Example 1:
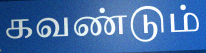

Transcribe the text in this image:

கவண்டும்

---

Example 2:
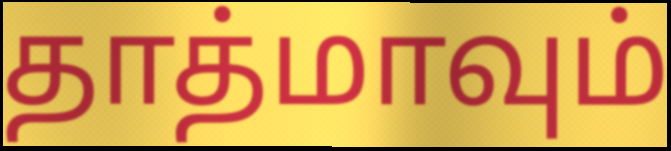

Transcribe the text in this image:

தாத்மாவும்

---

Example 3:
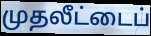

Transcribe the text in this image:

முதலீட்டைப்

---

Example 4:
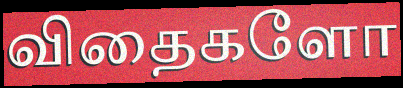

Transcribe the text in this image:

விதைகளோ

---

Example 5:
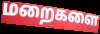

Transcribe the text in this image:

மறைகளை